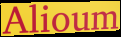
Alioum